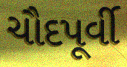
ચૌદપૂર્વી